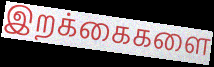
இறக்கைகளை